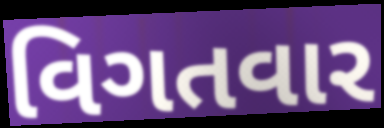
વિગતવાર